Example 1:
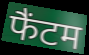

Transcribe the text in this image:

फैंटम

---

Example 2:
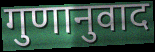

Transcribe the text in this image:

गुणानुवाद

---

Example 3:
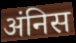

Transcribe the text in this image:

अंनिस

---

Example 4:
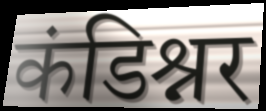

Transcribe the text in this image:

कंडिश्नर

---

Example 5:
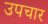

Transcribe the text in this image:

उपचार